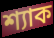
শ্যাক